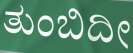
ತುಂಬಿದೀ